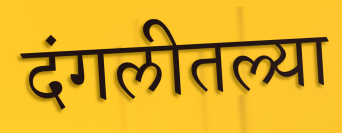
दंगलीतल्या